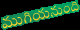
ముగియనుంది